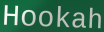
Hookah